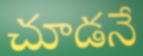
చూడనే